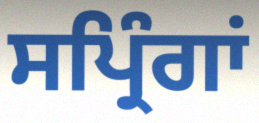
ਸਪ੍ਰਿੰਗਾਂ